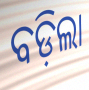
ବଡ଼ିଲା